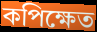
কপিক্ষেত